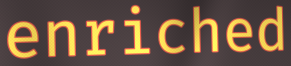
enriched